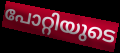
പോറ്റിയുടെ